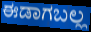
ಈಡಾಗಬಲ್ಲ